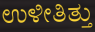
ಉಳೀತಿತ್ತು